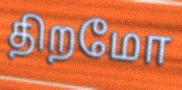
திறமோ